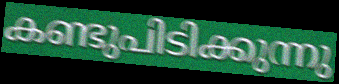
കണ്ടുപിടിക്കുന്നു